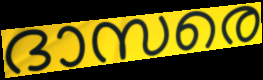
ദാസരെ